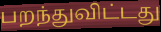
பறந்துவிட்டது